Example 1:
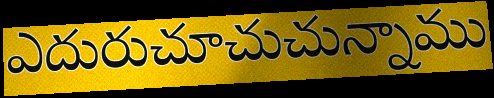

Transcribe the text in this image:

ఎదురుచూచుచున్నాము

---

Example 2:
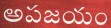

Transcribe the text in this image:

అపజయం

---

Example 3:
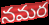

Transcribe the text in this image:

నమర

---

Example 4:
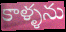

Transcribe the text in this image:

కాళ్ళను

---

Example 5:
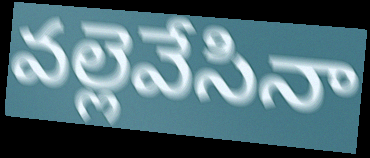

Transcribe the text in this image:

వల్లెవేసినా